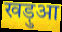
खड़ुआ